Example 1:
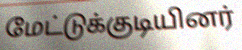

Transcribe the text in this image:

மேட்டுக்குடியினர்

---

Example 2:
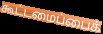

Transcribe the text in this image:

கூட்டமைப்பைக்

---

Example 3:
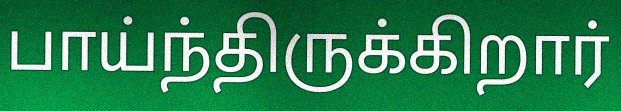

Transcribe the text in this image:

பாய்ந்திருக்கிறார்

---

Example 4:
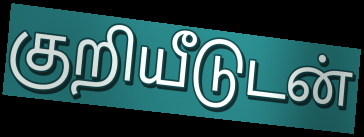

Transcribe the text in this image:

குறியீடுடன்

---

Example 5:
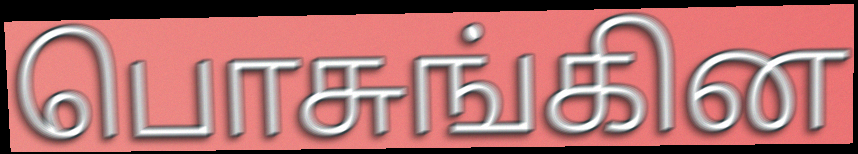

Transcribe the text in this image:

பொசுங்கின